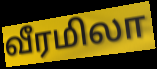
வீரமிலா